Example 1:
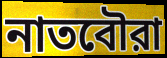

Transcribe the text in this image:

নাতবৌরা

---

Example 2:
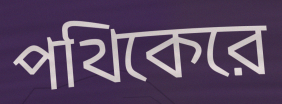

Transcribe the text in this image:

পথিকেরে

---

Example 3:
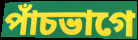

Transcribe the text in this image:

পাঁচভাগে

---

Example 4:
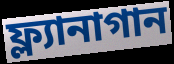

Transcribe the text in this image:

ফ্ল্যানাগান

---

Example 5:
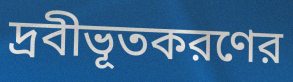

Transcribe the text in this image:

দ্রবীভূতকরণের